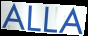
ALLA